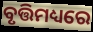
ବୃତ୍ତିମଧ୍ୟରେ